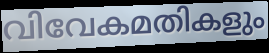
വിവേകമതികളും